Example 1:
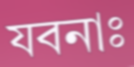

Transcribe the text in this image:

যবনাঃ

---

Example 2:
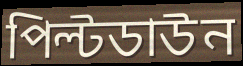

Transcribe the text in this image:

পিল্টডাউন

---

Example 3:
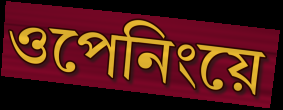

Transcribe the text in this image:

ওপেনিংয়ে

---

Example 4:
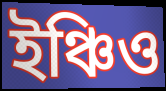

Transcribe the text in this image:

ইঞ্চিও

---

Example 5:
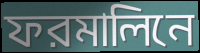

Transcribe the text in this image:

ফরমালিনে